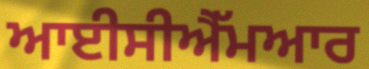
ਆਈਸੀਐੱਮਆਰ